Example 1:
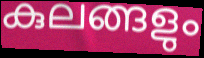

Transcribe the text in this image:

കുലങ്ങളും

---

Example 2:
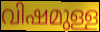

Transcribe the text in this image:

വിഷമുള്ള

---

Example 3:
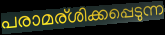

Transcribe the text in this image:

പരാമര്ശിക്കപ്പെടുന്ന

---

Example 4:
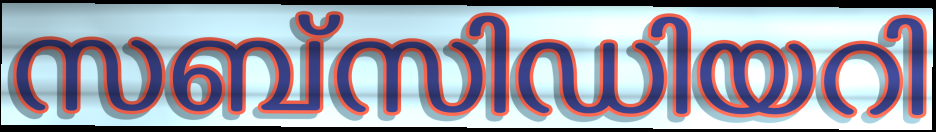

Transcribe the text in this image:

സബ്സിഡിയറി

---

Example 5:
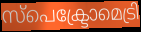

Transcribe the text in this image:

സ്പെക്ട്രോമെട്രി